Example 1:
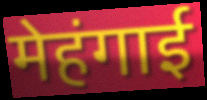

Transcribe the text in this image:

मेहंगाई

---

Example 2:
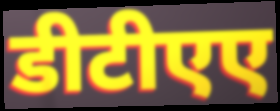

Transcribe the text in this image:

डीटीएए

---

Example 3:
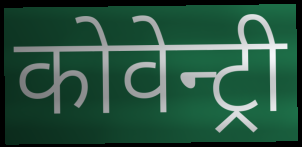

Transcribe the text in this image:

कोवेन्ट्री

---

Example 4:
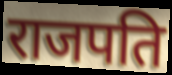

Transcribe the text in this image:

राजपति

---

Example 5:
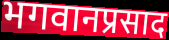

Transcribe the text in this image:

भगवानप्रसाद